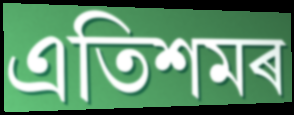
এতিশমৰ